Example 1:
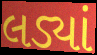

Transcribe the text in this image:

લડ્યાં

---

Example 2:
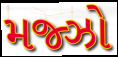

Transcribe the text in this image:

મજ્ઝો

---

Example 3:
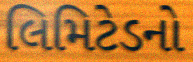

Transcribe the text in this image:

લિમિટેડનો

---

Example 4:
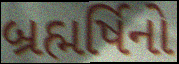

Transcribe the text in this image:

બ્રહ્મર્ષિનો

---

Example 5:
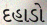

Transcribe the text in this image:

દહાડો